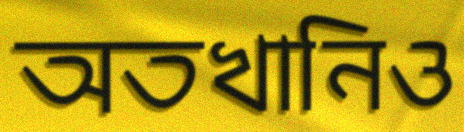
অতখানিও